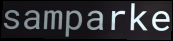
samparke